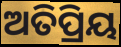
ଅତିପ୍ରିୟ